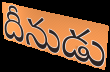
దీనుడు